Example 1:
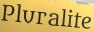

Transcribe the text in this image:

Pluralite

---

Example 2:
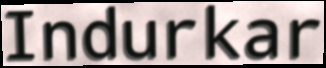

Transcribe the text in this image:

Indurkar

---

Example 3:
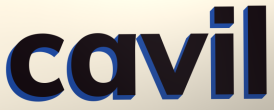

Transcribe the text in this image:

cavil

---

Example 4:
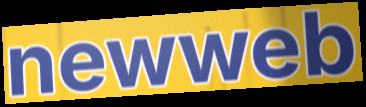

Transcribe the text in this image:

newweb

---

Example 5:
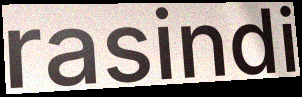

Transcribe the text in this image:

rasindi